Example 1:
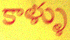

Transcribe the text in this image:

కాళ్ళు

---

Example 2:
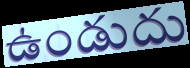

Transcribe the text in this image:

ఉండుదు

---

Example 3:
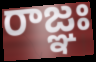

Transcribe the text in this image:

రాజ్ఞః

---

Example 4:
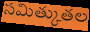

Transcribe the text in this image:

సమిత్కుతల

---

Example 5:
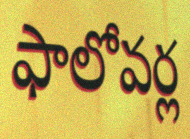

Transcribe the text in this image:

ఫాలోవర్ల